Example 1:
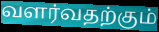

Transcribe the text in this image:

வளர்வதற்கும்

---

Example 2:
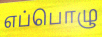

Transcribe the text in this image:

எப்பொழு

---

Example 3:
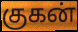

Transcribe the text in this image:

குகன்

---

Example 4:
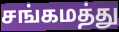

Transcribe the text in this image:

சங்கமத்து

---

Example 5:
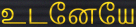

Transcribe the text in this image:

உடனேயே